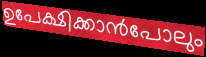
ഉപേക്ഷിക്കാൻപോലും